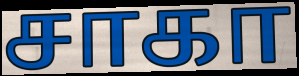
சாகா